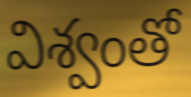
విశ్వంతో